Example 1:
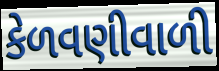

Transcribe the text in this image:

કેળવણીવાળી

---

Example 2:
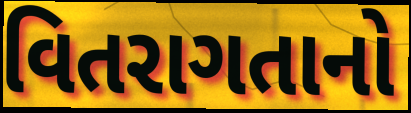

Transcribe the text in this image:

વિતરાગતાનો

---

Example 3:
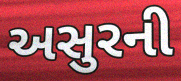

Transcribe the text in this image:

અસુરની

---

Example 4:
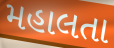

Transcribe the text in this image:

મહાલતા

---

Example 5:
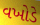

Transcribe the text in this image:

વખોડે